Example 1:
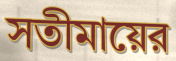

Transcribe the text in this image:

সতীমায়ের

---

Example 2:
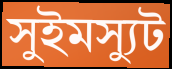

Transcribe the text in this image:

সুইমস্যুট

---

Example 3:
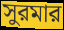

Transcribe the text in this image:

সুরমার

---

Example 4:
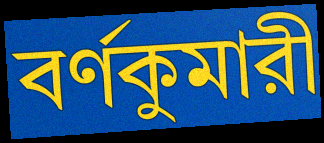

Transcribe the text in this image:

বর্ণকুমারী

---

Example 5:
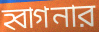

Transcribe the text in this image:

হ্বাগনার